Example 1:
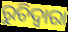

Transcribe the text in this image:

ରୁଚିଦ୍ୱାରା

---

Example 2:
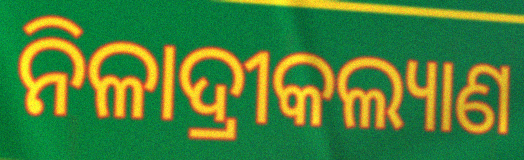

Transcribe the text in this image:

ନିଳାଦ୍ରୀକଲ୍ୟାଣ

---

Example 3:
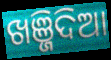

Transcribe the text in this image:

ଖଞ୍ଜିଦିଆ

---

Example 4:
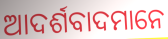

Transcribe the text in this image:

ଆଦର୍ଶବାଦମାନେ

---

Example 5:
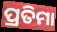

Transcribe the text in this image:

ପ୍ରତିମା